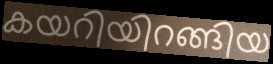
കയറിയിറങ്ങിയ